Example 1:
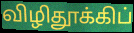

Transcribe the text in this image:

விழிதூக்கிப்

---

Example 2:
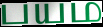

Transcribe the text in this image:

பயம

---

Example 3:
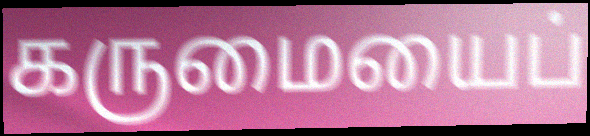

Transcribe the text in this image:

கருமையைப்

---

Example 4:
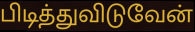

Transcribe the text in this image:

பிடித்துவிடுவேன்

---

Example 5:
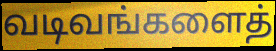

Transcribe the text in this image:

வடிவங்களைத்